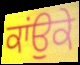
ਕਾਂਉਕੇ